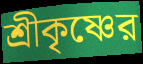
শ্রীকৃষ্ণের